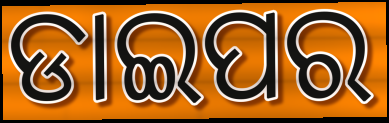
ଡାଇପର